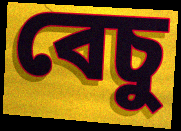
বেচু